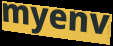
myenv